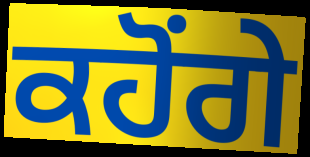
ਕਹੋਂਗੇ